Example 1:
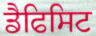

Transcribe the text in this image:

ਡੈਫਿਸਿਟ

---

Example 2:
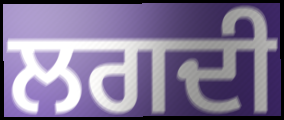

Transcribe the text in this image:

ਲਗਦੀ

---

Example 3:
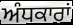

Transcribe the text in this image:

ਅੰਧਕਾਰਾਂ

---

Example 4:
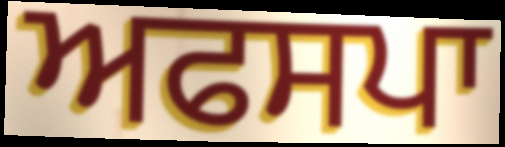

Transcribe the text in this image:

ਅਫਸਪਾ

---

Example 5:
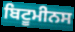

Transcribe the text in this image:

ਬਿਟੂਮੀਨਸ